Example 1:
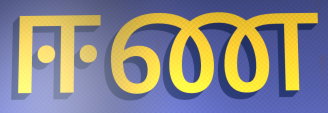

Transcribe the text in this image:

ஈண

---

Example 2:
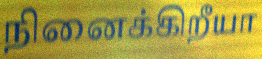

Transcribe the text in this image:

நினைக்கிறீயா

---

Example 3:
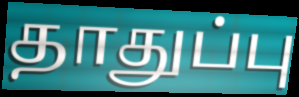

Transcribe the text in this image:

தாதுப்பு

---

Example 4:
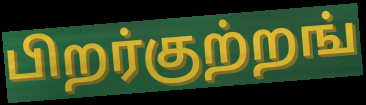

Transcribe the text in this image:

பிறர்குற்றங்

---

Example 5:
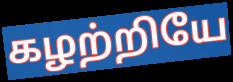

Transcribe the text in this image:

கழற்றியே